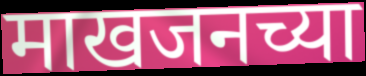
माखजनच्या